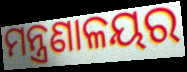
ମନ୍ତ୍ରଣାଳୟର